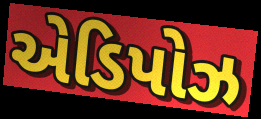
એડિપોઝ